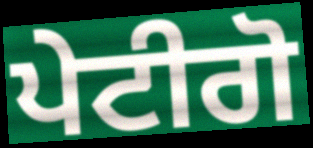
ਪੇਟੀਗੋ